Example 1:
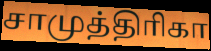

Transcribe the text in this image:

சாமுத்திரிகா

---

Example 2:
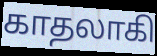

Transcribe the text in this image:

காதலாகி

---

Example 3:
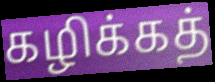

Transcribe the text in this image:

கழிக்கத்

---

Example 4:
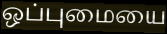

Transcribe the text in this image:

ஒப்புமையை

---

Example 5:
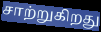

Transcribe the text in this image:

சாற்றுகிறது